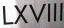
LXVIII